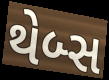
થેબ્સ